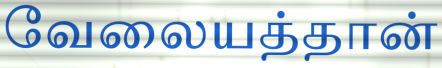
வேலையத்தான்